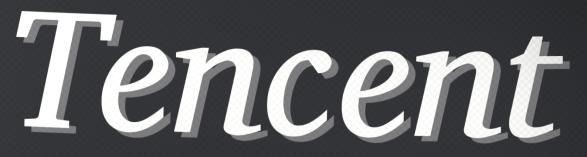
Tencent